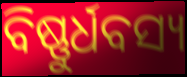
ବିଷ୍ଣୁର୍ଧବସ୍ୟ